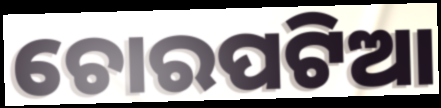
ଚୋରପଟିଆ